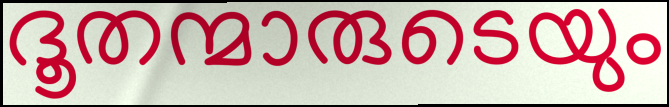
ദൂതന്മാരുടെയും